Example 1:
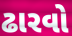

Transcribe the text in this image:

ઢારવો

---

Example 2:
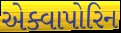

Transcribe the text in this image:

એક્વાપોરિન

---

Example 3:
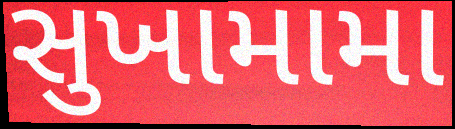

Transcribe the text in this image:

સુખામામા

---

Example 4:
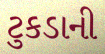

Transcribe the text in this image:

ટુકડાની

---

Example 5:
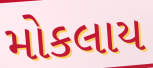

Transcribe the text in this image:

મોકલાય